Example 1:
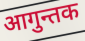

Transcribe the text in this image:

आगुन्तक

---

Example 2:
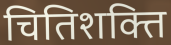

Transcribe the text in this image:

चितिशक्ति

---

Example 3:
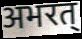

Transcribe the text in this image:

अभरत्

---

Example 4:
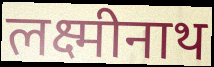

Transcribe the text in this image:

लक्ष्मीनाथ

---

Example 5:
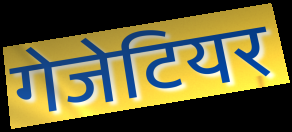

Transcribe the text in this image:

गेजेटियर